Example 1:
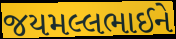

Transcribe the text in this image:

જયમલ્લભાઈને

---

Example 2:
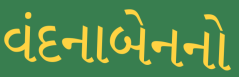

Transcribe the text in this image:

વંદનાબેનનો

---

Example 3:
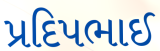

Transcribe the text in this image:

પ્રદિપભાઈ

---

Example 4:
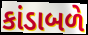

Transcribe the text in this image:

કાંડાબળે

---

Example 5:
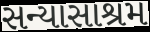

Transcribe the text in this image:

સન્યાસાશ્રમ